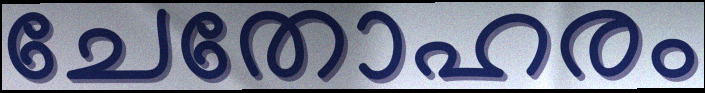
ചേതോഹരം